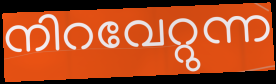
നിറവേറ്റുന്ന